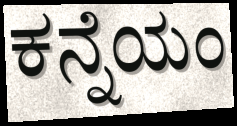
ಕನ್ನೆಯಂ